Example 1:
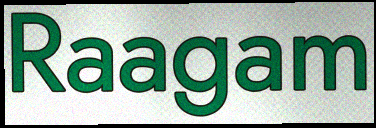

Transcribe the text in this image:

Raagam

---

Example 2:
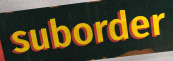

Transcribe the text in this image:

suborder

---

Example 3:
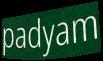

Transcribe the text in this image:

padyam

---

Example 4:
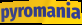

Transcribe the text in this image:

pyromania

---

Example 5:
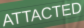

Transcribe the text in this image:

ATTACTED